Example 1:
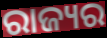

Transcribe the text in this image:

ରାଜ୍ୟର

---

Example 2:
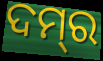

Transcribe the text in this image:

ଦମ୍‌ର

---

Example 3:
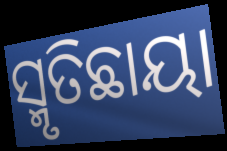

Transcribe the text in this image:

ସ୍ମୃତିଛାୟା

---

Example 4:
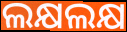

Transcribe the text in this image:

ଲକ୍ଷଲକ୍ଷ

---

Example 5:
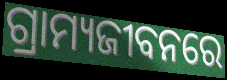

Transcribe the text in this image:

ଗ୍ରାମ୍ୟଜୀବନରେ